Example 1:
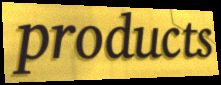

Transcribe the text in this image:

products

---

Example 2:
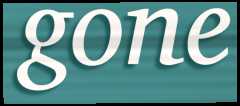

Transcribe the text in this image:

gone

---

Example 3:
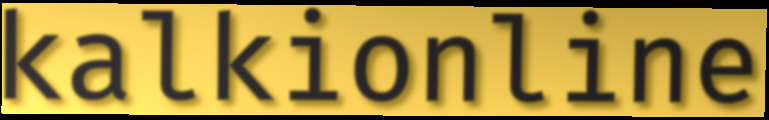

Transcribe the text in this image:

kalkionline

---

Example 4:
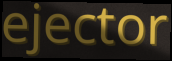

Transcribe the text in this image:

ejector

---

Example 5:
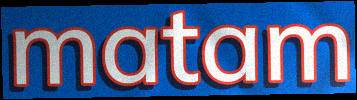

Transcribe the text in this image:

matam